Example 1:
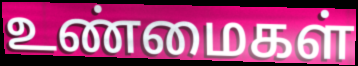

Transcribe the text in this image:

உண்மைகள்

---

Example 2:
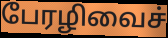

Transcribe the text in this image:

பேரழிவைச்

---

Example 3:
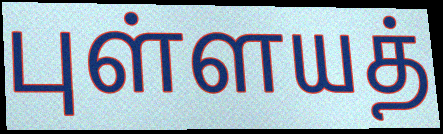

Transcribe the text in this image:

புள்ளயத்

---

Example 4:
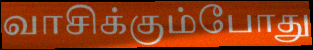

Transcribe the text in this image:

வாசிக்கும்போது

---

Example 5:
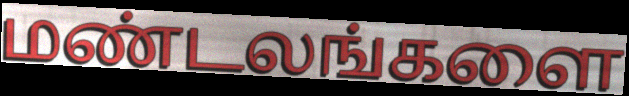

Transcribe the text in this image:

மண்டலங்களை